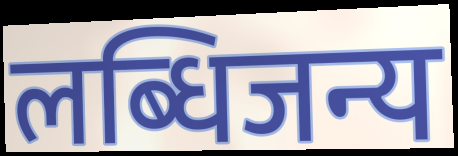
लब्धिजन्य